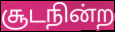
சூடநின்ற